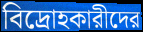
বিদ্রোহকারীদের